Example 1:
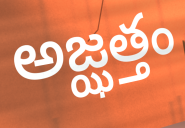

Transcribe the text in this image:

అజ్ఝత్తం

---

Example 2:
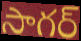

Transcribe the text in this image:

సాగర్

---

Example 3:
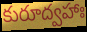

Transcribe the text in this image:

కురూద్వహాః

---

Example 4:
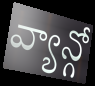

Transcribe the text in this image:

వ్యాన్గో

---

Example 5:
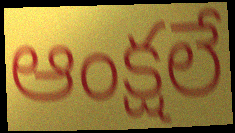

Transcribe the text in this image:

ఆంక్షలే